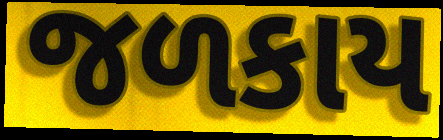
જળકાય